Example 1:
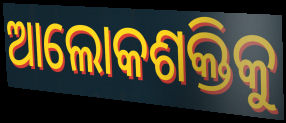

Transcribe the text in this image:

ଆଲୋକଶକ୍ତିକୁ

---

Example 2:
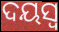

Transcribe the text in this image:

ଦୟସ୍ଵ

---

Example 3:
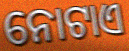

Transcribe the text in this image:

ନୋଟାଏ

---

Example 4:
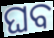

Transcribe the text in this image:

ଘବ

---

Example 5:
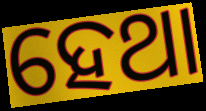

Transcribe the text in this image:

ହେଥା